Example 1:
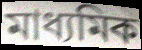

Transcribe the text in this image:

মাধ্যমিক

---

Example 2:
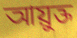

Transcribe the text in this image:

আয়ুক্ত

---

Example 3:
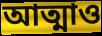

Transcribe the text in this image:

আত্মাও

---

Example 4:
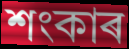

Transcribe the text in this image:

শংকাৰ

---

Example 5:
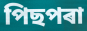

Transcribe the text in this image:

পিছপৰা